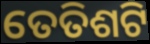
ତେତିଶଟି